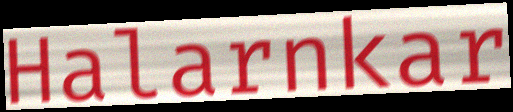
Halarnkar